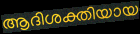
ആദിശക്തിയായ